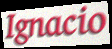
Ignacio